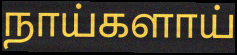
நாய்களாய்